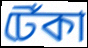
টেঁকা